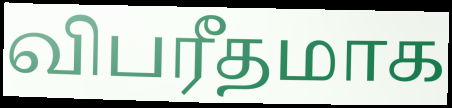
விபரீதமாக